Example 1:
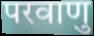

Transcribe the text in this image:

परवाणु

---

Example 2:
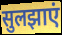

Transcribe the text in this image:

सुलझाएं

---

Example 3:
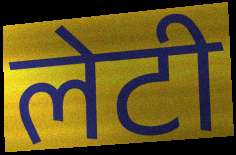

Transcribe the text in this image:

लेटी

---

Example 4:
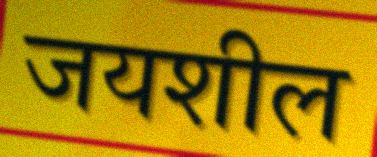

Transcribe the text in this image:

जयशील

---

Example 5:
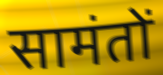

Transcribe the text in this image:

सामंतों